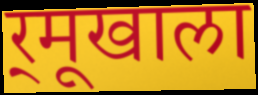
र्मूखाला